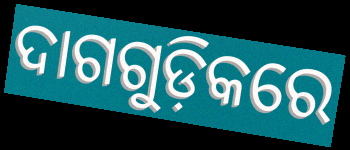
ଦାଗଗୁଡ଼ିକରେ